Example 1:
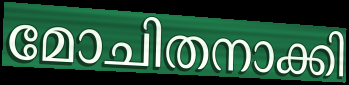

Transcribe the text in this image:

മോചിതനാക്കി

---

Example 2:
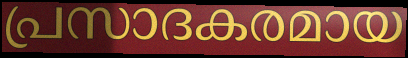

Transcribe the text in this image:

പ്രസാദകരമായ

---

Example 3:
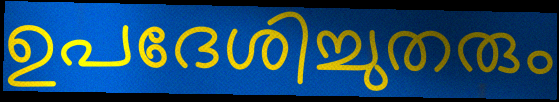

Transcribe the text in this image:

ഉപദേശിച്ചുതരും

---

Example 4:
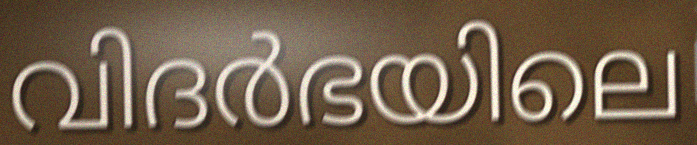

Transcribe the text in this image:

വിദർഭയിലെ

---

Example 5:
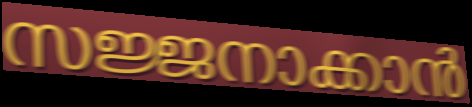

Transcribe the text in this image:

സജ്ജനാക്കാൻ